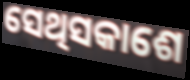
ସେଥିସକାଶେ